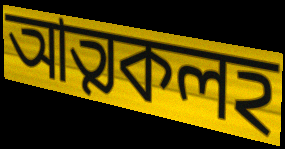
আত্মকলহ